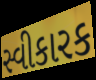
સ્વીકારક